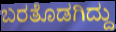
ಬರತೊಡಗಿದ್ದು